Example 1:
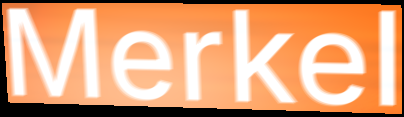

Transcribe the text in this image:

Merkel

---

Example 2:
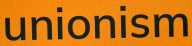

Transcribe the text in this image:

unionism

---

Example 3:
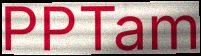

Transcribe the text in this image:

PPTam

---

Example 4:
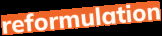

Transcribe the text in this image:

reformulation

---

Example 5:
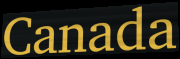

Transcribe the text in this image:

Canada